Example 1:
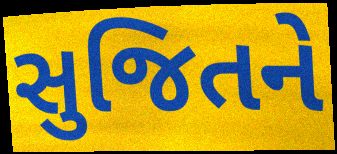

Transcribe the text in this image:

સુજિતને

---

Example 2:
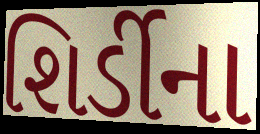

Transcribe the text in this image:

શિર્ડીના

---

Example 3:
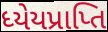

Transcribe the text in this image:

ધ્યેયપ્રાપ્તિ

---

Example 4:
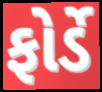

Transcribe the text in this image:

ફોર્ડે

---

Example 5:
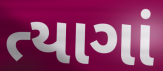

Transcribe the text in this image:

ત્યાગાં